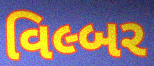
વિલ્બર